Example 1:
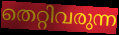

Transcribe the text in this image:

തെറ്റിവരുന്ന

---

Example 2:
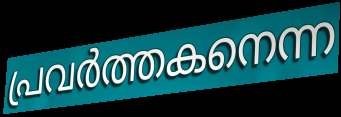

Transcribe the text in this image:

പ്രവർത്തകനെന്ന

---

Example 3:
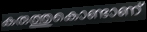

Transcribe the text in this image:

കരുത്തുകൊണ്ടാണ്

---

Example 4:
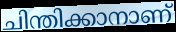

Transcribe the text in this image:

ചിന്തിക്കാനാണ്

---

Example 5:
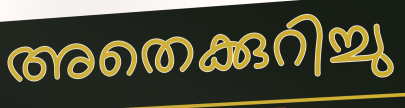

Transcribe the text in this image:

അതെക്കുറിച്ചു